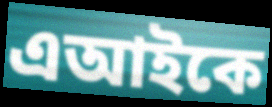
এআইকে